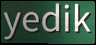
yedik